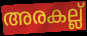
അരകല്ല്